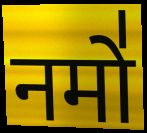
नमो॑